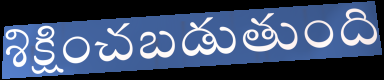
శిక్షించబడుతుంది